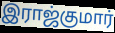
இராஜ்குமார்